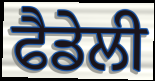
ਫੈਡੇਲੀ